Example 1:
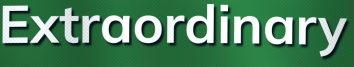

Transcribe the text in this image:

Extraordinary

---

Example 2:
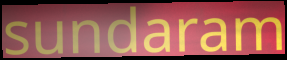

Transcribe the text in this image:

sundaram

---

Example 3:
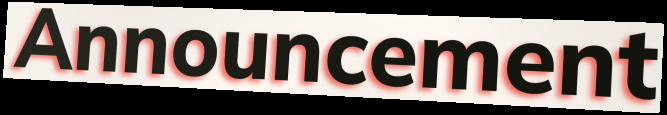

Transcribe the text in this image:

Announcement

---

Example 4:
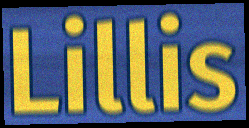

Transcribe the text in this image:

Lillis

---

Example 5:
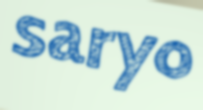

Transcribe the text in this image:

saryo